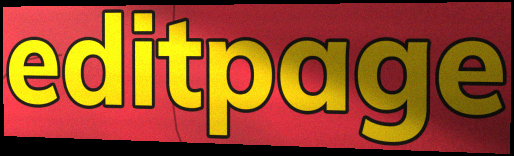
editpage